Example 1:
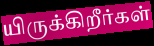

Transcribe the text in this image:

யிருக்கிறீர்கள்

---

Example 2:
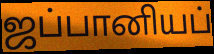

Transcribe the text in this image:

ஜப்பானியப்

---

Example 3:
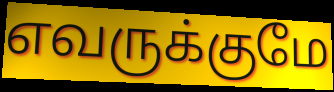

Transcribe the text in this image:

எவருக்குமே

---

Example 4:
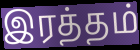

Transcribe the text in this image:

இரத்தம்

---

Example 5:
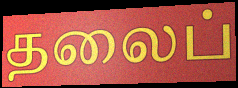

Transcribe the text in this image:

தலைப்